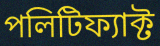
পলিটিফ্যাক্ট